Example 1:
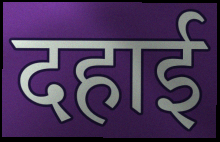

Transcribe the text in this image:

दहाई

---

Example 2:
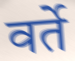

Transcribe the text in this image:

वर्ते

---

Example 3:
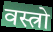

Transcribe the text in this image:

वस्त्रो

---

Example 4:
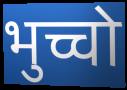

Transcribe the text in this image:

भुच्चो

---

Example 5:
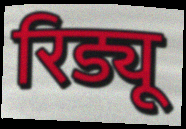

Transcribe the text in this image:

रिड्यू